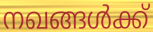
നഖങ്ങൾക്ക്